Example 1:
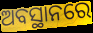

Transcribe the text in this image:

ଅବସ୍ଥାନରେ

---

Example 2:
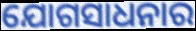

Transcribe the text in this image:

ଯୋଗସାଧନାର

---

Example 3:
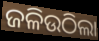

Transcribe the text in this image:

ଜଳିଉଠିଲା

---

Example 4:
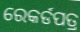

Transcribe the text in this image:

ରେକର୍ଡପତ୍ର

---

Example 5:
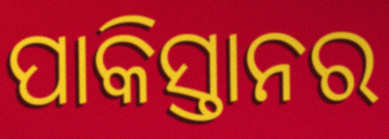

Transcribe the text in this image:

ପାକିସ୍ତାନର